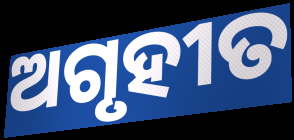
ଅଗୃହୀତ